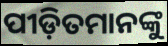
ପୀଡ଼ିତମାନଙ୍କୁ